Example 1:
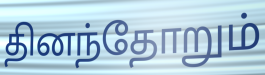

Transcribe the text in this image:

தினந்தோறும்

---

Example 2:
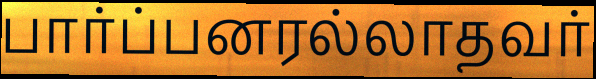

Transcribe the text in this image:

பார்ப்பனரல்லாதவர்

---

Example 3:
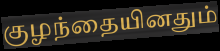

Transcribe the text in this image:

குழந்தையினதும்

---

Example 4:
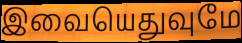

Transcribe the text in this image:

இவையெதுவுமே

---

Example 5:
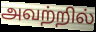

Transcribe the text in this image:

அவற்றில்